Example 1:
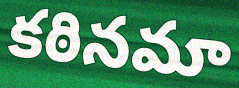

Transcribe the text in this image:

కఠినమా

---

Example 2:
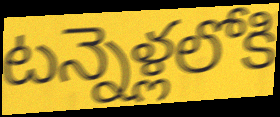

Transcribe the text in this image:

టన్నెళ్లలోకి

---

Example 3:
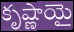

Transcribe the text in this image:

కృష్ణాయై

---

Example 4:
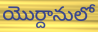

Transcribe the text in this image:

యొర్దానులో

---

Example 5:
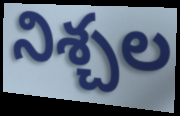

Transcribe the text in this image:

నిశ్చల